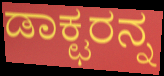
ಡಾಕ್ಟರನ್ನ